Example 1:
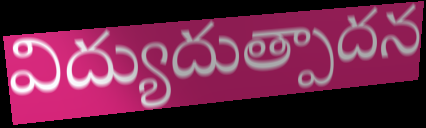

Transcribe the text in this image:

విద్యుదుత్పాదన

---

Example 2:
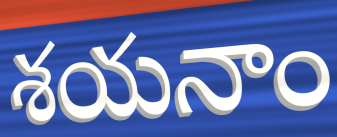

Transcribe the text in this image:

శయనాం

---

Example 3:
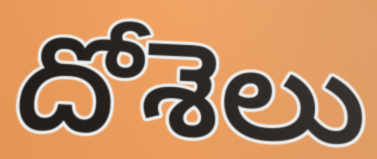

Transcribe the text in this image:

దోశెలు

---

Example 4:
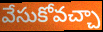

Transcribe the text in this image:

వేసుకోవచ్చా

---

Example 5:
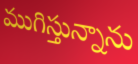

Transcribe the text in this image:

ముగిస్తున్నాను